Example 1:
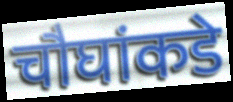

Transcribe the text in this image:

चौघांकडे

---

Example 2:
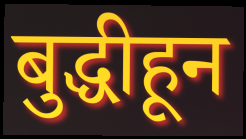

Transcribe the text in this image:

बुद्धीहून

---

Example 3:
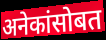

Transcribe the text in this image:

अनेकांसोबत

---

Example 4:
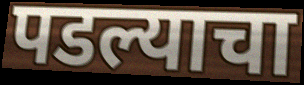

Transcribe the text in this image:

पडल्याचा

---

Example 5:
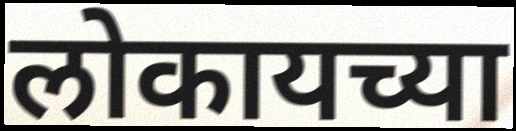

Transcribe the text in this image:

लोकायच्या